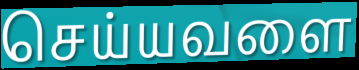
செய்யவளை